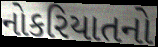
નોકરિયાતનો